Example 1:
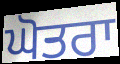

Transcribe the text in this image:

ਘੋਤਰਾ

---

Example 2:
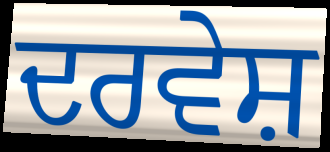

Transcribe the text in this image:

ਦਰਵੇਸ਼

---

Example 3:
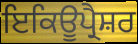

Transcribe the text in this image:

ਇਕਿਊਪ੍ਰੈਸ਼ਰ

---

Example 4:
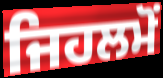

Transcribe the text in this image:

ਜਿਹਲਮੋਂ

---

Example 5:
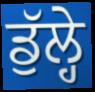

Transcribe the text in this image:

ਡੁੱਲ੍ਹੇ